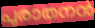
പുരാതനൻ